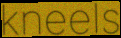
kneels